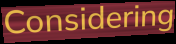
Considering